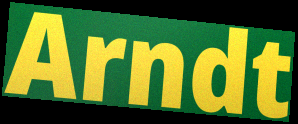
Arndt